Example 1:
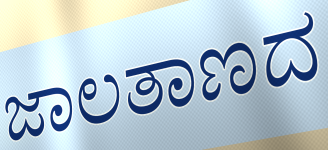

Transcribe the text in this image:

ಜಾಲತಾಣದ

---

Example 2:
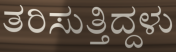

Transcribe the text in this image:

ತರಿಸುತ್ತಿದ್ದಳು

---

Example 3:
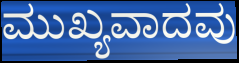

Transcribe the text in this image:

ಮುಖ್ಯವಾದವು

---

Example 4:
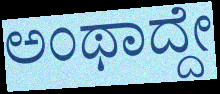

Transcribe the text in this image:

ಅಂಥಾದ್ದೇ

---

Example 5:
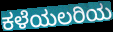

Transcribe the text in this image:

ಕಳೆಯಲರಿಯ